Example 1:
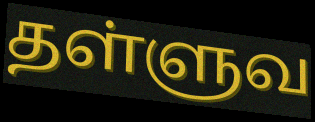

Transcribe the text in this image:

தள்ளுவ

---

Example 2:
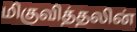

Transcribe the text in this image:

மிகுவித்தலின்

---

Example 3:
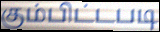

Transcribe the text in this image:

கும்பிட்டபடி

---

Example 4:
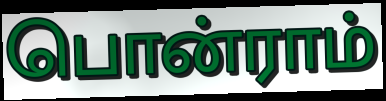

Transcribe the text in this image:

பொன்ராம்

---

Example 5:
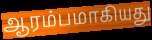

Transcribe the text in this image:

ஆரம்பமாகியது